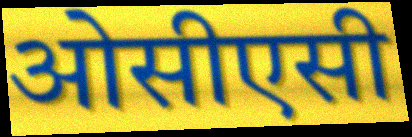
ओसीएसी